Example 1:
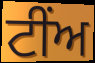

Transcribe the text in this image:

ਟੀਂਅ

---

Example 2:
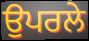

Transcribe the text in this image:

ਉਪਰਲੇ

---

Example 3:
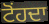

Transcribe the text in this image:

ਟੋਂਹਦਾ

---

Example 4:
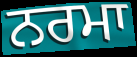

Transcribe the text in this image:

ਨਰਮਾ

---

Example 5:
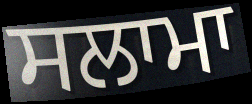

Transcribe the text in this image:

ਸਲਾਮਾ